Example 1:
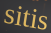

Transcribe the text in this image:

sitis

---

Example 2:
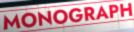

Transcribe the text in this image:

MONOGRAPH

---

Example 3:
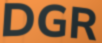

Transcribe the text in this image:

DGR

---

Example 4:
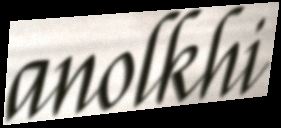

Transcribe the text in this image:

anolkhi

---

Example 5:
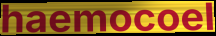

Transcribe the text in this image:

haemocoel